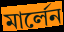
মার্লেন